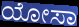
ಯೋಸಾ